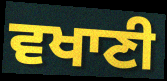
ਵਖਾਣੀ